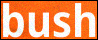
bush